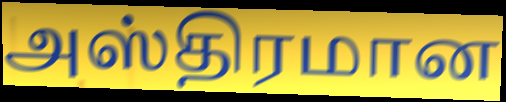
அஸ்திரமான